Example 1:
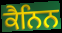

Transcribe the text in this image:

ਕੈਨਿਨ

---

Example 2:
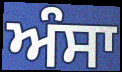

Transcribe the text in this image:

ਅੰਸਾ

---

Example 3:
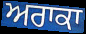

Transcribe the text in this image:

ਅਰਾਕਾ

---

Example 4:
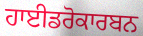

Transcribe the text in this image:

ਹਾਈਡਰੋਕਾਰਬਨ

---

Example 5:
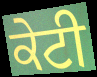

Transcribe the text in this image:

ਕੇਟੀ